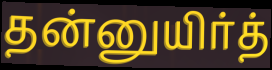
தன்னுயிர்த்